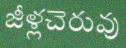
జీళ్లచెరువు